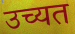
उच्यत